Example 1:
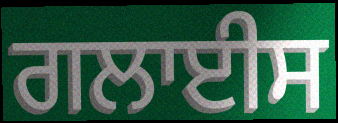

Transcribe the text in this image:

ਗਲਾਈਸ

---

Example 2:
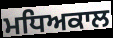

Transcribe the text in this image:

ਮਧਿਅਕਾਲ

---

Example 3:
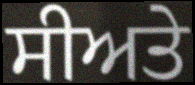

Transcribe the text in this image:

ਸੀਅਤੇ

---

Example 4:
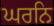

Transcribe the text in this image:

ਘਰਨਿ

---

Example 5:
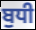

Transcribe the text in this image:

ਬੁਧੀ